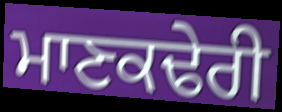
ਮਾਣਕਢੇਰੀ